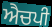
ਐਚਪੀ